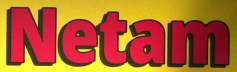
Netam